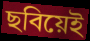
ছবিয়েই